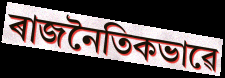
ৰাজনৈতিকভাৱে